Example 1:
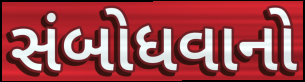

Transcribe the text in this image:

સંબોધવાનો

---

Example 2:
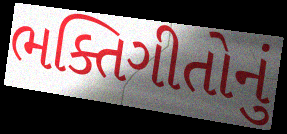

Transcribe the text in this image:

ભક્તિગીતોનું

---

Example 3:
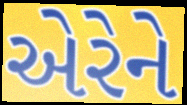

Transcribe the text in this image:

એરેને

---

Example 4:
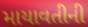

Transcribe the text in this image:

માયાવતીની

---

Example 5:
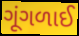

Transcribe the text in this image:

ગૂંગળાઈ